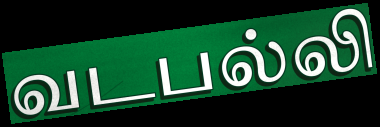
வடபல்லி